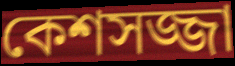
কেশসজ্জা